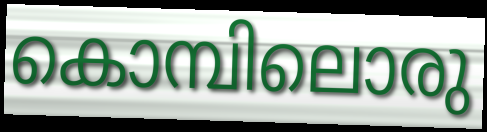
കൊമ്പിലൊരു